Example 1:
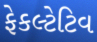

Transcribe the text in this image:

ફેકલ્ટેટિવ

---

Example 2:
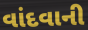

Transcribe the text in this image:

વાંદવાની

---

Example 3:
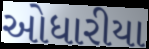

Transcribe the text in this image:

ઓધારીયા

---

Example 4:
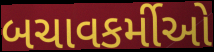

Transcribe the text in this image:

બચાવકર્મીઓ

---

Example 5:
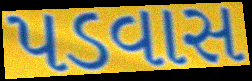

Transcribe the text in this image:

પડવાસ